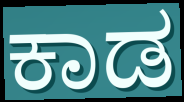
ಕಾಡ